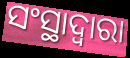
ସଂସ୍ଥାଦ୍ଵାରା